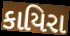
કાયિરા